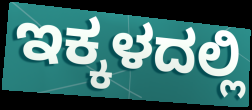
ಇಕ್ಕಳದಲ್ಲಿ